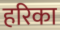
हरिका